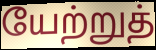
யேற்றுத்